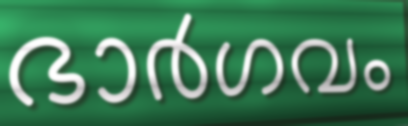
ഭാർഗവം